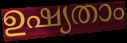
ഉഷ്യതാം